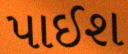
પાઈશ